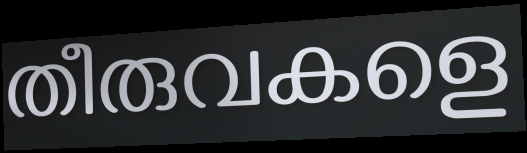
തീരുവകളെ